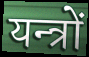
यन्त्रों